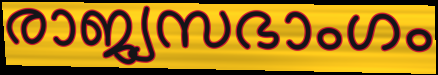
രാജ്യസഭാംഗം